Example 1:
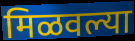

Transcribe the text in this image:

मिळवल्या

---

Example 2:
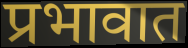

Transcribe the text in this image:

प्रभावात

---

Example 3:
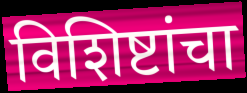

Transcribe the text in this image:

विशिष्टांचा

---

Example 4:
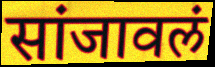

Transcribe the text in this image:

सांजावलं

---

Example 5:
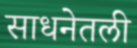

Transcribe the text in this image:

साधनेतली